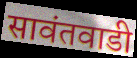
सावंतवाडी